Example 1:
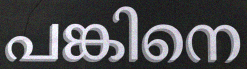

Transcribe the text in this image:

പങ്കിനെ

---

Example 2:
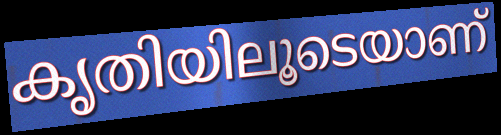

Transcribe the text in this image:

കൃതിയിലൂടെയാണ്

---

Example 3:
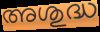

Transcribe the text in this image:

അശുദ്ധ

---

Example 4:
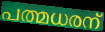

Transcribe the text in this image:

പത്മധരന്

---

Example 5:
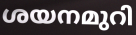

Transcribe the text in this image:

ശയനമുറി